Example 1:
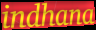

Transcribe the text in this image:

indhana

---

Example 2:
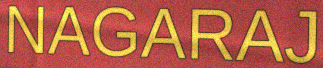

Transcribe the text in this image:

NAGARAJ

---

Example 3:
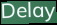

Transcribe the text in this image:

Delay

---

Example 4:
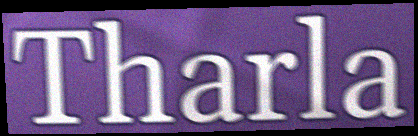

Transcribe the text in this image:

Tharla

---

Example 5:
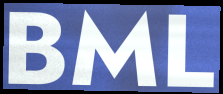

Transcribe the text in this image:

BML